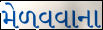
મેળવવાના